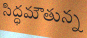
సిద్ధమౌతున్న